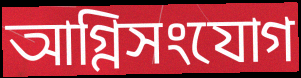
আগ্নিসংযোগ